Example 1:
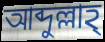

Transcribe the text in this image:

আব্দুল্লাহ্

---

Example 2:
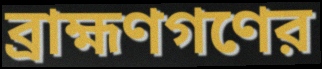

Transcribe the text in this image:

ব্রাহ্মণগণের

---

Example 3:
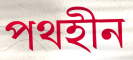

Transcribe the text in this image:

পথহীন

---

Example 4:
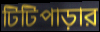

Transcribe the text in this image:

টিটিপাড়ার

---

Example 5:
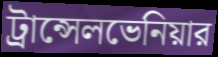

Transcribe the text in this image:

ট্রান্সেলভেনিয়ার